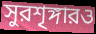
সুরশৃঙ্গারও